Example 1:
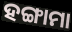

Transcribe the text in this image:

ହଙ୍ଗାମା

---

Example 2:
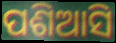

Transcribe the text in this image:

ପଶିଆସି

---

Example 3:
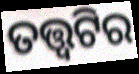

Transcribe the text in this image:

ତତ୍ତ୍ଵଟିର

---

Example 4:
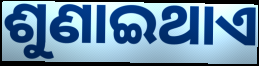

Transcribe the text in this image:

ଶୁଣାଇଥାଏ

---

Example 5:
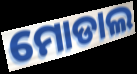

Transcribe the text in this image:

ମୋଡାଲ